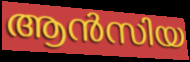
ആൻസിയ